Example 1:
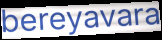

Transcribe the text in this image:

bereyavara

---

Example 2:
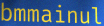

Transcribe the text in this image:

bmmainul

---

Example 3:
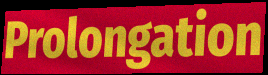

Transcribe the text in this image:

Prolongation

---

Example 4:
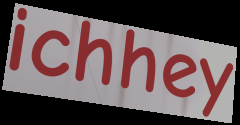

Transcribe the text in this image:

ichhey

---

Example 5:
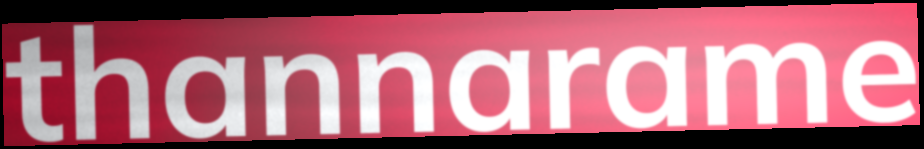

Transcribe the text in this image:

thannarame